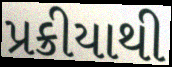
પ્રક્રીયાથી